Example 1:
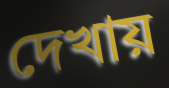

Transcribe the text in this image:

দেখায়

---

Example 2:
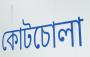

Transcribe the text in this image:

কোটচোলা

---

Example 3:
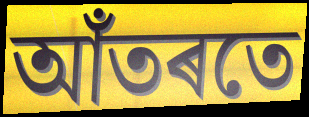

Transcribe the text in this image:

আঁতৰতে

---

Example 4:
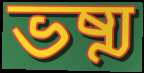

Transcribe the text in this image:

ভষ্ম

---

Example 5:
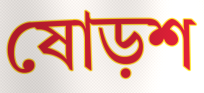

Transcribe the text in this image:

ষোড়শ